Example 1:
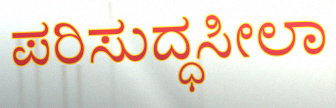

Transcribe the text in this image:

ಪರಿಸುದ್ಧಸೀಲಾ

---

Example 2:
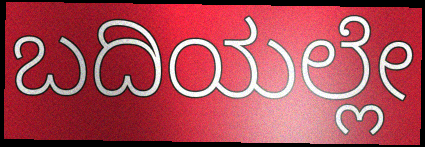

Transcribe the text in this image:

ಬದಿಯಲ್ಲೇ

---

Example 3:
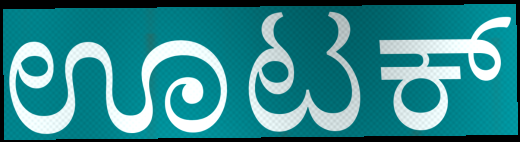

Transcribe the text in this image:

ಊಟಕ್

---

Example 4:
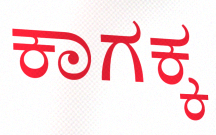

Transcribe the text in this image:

ಕಾಗಕ್ಕ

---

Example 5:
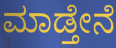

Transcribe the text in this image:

ಮಾಡ್ತೇನೆ